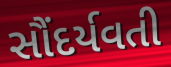
સૌંદર્યવતી